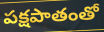
పక్షపాతంతో